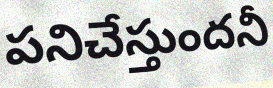
పనిచేస్తుందనీ